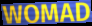
WOMAD